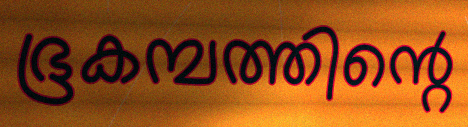
ഭൂകമ്പത്തിന്റെ